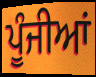
ਪੂੰਜੀਆਂ